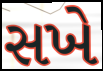
સખે